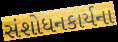
સંશોધનકાર્યના